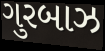
ગુરબાઝ